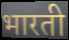
भारती